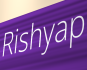
Rishyap